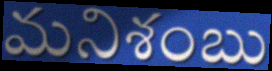
మనిశంబు